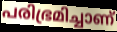
പരിഭ്രമിച്ചാണ്